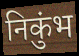
निकुंभ